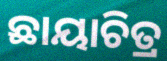
ଛାୟାଚିତ୍ର